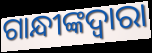
ଗାନ୍ଧୀଙ୍କଦ୍ଵାରା